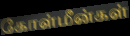
கோள்மீன்கள்